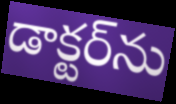
డాక్టర్‌ను